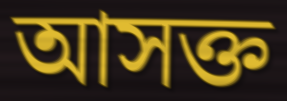
আসক্ত